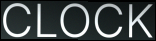
CLOCK